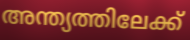
അന്ത്യത്തിലേക്ക്